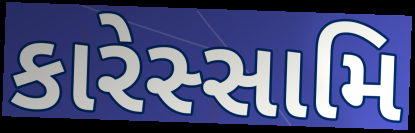
કારેસ્સામિ